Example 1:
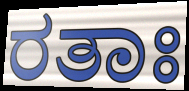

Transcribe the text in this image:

ರತಾಃ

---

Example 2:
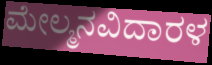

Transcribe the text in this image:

ಮೇಲ್ಮನವಿದಾರಳ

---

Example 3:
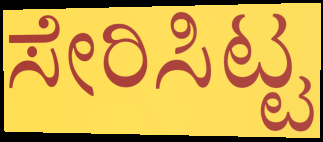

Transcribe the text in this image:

ಸೇರಿಸಿಟ್ಟ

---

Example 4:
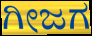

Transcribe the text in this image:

ಗೀಜಗ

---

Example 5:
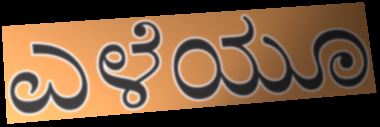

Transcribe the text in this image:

ಎಳೆಯೂ